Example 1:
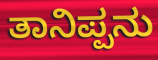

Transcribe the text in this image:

ತಾನಿಪ್ಪನು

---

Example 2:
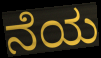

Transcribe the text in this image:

ನೆಯ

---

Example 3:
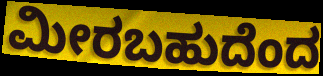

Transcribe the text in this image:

ಮೀರಬಹುದೆಂದ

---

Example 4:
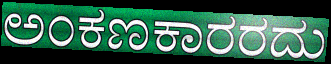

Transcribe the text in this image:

ಅಂಕಣಕಾರರದು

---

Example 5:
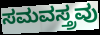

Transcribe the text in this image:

ಸಮವಸ್ತ್ರವು